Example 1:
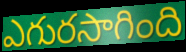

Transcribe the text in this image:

ఎగురసాగింది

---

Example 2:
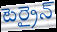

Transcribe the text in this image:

టెర్రైన్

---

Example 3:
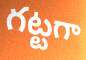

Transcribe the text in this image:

గట్టగా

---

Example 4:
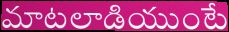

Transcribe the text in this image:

మాటలాడియుంటే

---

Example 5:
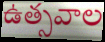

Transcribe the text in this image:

ఉత్సవాల